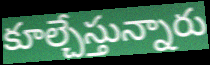
కూల్చేస్తున్నారు